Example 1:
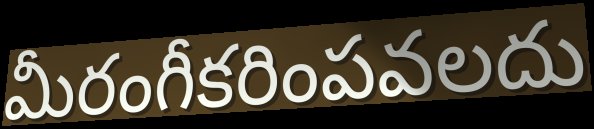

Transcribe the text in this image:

మీరంగీకరింపవలదు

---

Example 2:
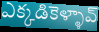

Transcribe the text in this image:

ఎక్కడికెళ్ళావ్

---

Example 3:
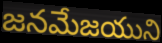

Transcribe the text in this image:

జనమేజయుని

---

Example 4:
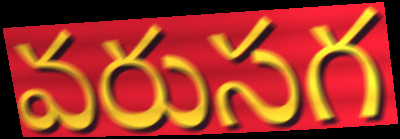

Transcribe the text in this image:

వరుసగ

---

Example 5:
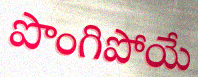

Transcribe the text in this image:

పొంగిపోయే